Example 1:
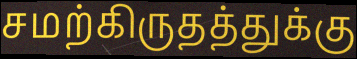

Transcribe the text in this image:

சமற்கிருதத்துக்கு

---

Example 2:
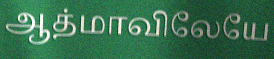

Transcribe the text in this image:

ஆத்மாவிலேயே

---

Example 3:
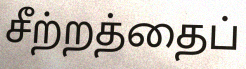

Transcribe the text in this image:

சீற்றத்தைப்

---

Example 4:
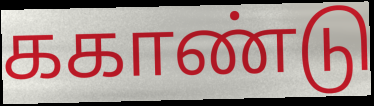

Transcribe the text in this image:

ககாண்டு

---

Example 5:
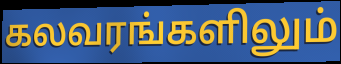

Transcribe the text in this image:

கலவரங்களிலும்